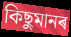
কিছুমানৰ